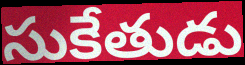
సుకేతుడు